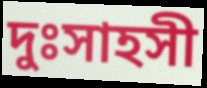
দুঃসাহসী